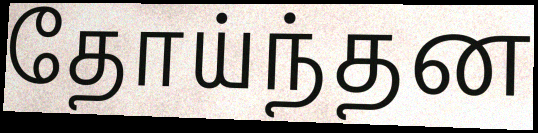
தோய்ந்தன